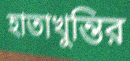
হাতাখুন্তির